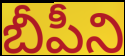
బీపీని